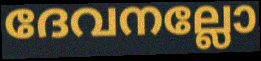
ദേവനല്ലോ